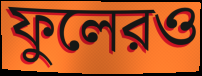
ফুলেরও